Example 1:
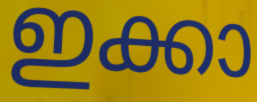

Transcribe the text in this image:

ഇക്കാ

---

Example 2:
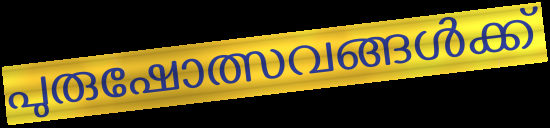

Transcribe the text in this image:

പുരുഷോത്സവങ്ങൾക്ക്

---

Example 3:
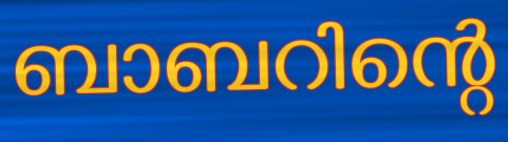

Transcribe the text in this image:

ബാബറിന്റെ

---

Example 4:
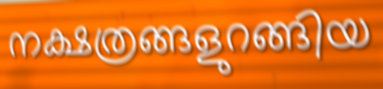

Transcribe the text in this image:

നക്ഷത്രങ്ങളുറങ്ങിയ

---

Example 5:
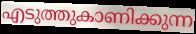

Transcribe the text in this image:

എടുത്തുകാണിക്കുന്ന